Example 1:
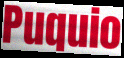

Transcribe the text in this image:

Puquio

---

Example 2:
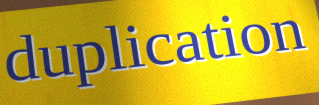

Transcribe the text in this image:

duplication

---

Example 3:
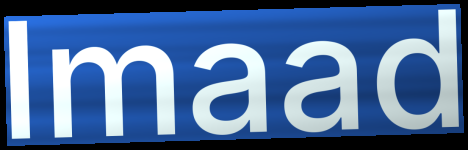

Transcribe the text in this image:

Imaad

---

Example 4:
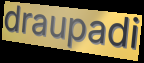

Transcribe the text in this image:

draupadi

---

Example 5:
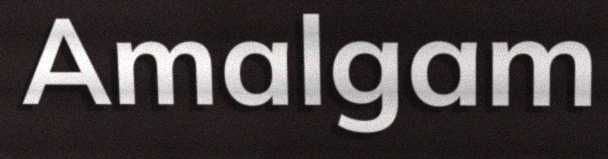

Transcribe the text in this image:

Amalgam